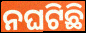
ନଘଟିଛି